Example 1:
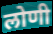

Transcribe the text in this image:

लोणी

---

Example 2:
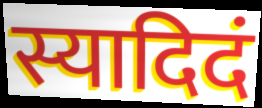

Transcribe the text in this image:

स्यादिदं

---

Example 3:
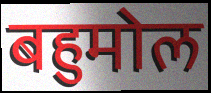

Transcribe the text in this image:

बहुमोल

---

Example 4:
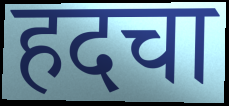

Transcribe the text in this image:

हदचा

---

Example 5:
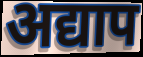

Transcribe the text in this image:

अद्याप